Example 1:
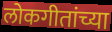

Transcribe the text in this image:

लोकगीतांच्या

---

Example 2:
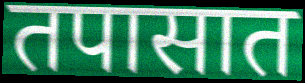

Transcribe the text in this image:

तपासात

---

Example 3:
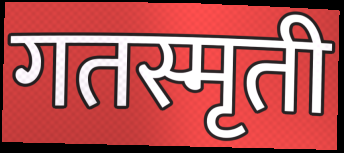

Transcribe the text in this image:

गतस्मृती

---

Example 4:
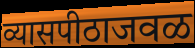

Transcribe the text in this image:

व्यासपीठाजवळ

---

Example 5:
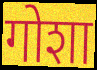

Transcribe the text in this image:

गोशा